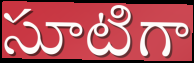
సూటిగా